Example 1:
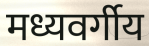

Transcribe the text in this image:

मध्यवर्गीय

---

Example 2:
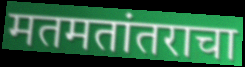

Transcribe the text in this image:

मतमतांतराचा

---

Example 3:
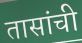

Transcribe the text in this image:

तासांची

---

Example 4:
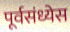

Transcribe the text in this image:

पूर्वसंध्येस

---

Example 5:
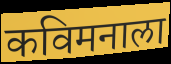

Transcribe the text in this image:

कविमनाला